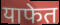
याफेत